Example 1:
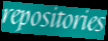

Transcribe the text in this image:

repositories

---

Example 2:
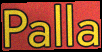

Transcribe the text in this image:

Palla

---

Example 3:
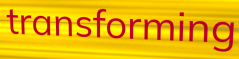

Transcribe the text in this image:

transforming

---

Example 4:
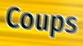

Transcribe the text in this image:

Coups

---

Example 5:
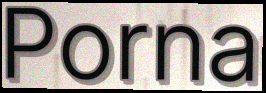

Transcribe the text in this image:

Porna